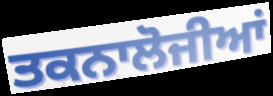
ਤਕਨਾਲੋਜੀਆਂ